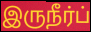
இருநீர்ப்